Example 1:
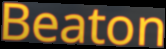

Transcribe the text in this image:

Beaton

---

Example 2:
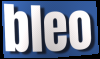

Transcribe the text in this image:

bleo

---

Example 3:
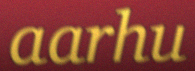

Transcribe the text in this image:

aarhu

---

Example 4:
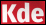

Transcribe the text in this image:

Kde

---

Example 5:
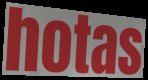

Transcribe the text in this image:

hotas